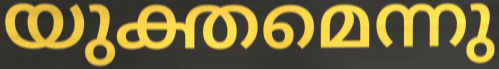
യുക്തമെന്നു